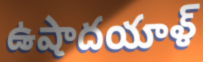
ఉషాదయాళ్